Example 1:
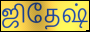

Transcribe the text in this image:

ஜிதேஷ்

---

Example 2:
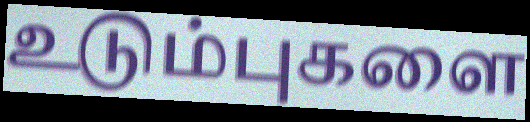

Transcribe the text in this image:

உடும்புகளை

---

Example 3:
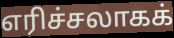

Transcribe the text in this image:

எரிச்சலாகக்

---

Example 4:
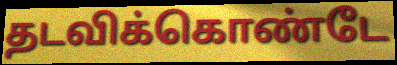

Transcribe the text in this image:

தடவிக்கொண்டே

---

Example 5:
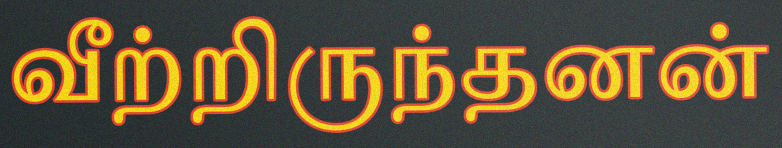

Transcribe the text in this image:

வீற்றிருந்தனன்